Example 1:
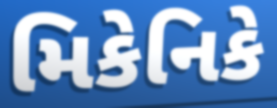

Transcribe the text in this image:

મિકેનિકે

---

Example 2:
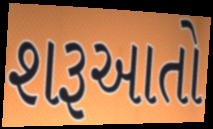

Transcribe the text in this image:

શરૂઆતો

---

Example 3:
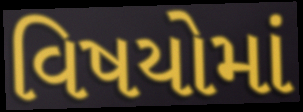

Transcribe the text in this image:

વિષયોમાં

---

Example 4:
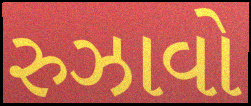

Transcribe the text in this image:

રુઝાવો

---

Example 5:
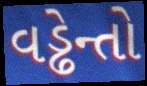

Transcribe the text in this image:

વડ્ઢેન્તો